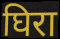
घिरा